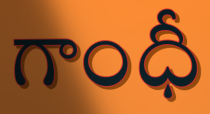
గాంధీ